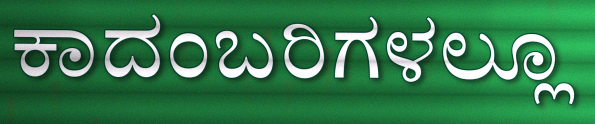
ಕಾದಂಬರಿಗಳಲ್ಲೂ